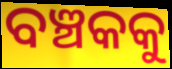
ବଞ୍ଚକକୁ